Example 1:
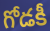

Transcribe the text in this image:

గోడకీ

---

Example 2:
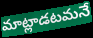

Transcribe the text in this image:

మాట్లాడటమనే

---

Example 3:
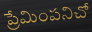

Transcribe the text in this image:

ప్రేమింపనిచో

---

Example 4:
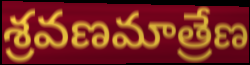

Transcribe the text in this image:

శ్రవణమాత్రేణ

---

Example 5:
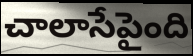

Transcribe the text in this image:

చాలాసేపైంది